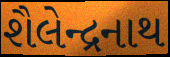
શૈલેન્દ્રનાથ